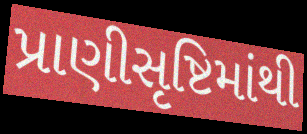
પ્રાણીસૃષ્ટિમાંથી